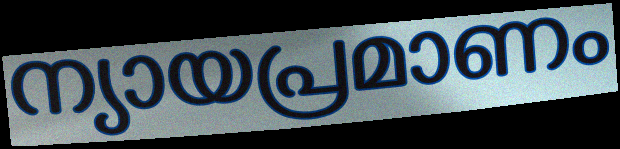
ന്യായപ്രമാണം